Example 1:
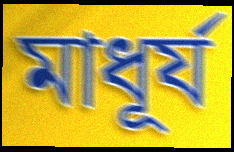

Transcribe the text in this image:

মাধূর্য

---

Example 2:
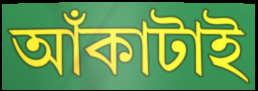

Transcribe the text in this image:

আঁকাটাই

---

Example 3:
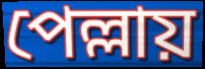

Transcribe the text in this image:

পেল্লায়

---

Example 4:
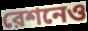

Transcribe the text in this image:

রেশনেও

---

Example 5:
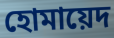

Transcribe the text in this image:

হোমায়েদ